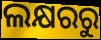
ଲକ୍ଷରରୁ